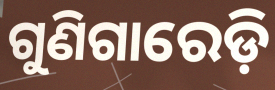
ଗୁଣିଗାରେଡ଼ି